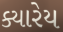
ક્યારેય